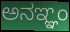
ಅನಞ್ಞಂ